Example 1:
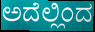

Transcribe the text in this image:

ಅದೆಲ್ಲಿಂದ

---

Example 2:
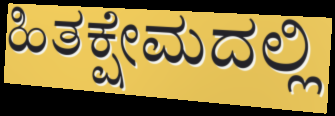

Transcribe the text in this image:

ಹಿತಕ್ಷೇಮದಲ್ಲಿ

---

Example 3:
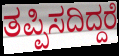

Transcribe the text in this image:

ತಪ್ಪಿಸದಿದ್ದರೆ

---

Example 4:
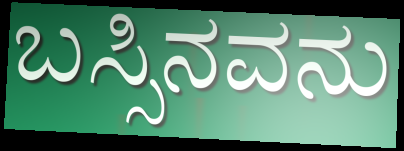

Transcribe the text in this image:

ಬಸ್ಸಿನವನು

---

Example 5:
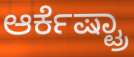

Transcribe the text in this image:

ಆರ್ಕೆಷ್ಟ್ರಾ